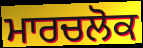
ਮਾਰਚਲੋਕ